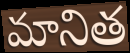
మానిత